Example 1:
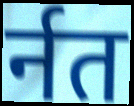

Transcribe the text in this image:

र्नत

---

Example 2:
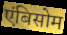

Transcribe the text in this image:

एंबिसोम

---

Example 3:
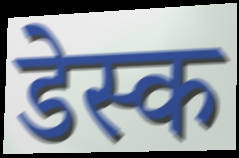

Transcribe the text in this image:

डेस्क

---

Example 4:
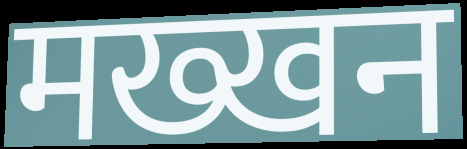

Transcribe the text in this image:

मख्खन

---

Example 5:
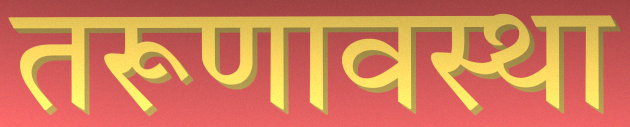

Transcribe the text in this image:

तरूणावस्था